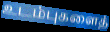
உடம்புகளைத்